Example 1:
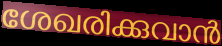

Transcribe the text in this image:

ശേഖരിക്കുവാൻ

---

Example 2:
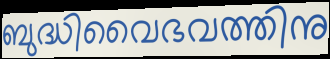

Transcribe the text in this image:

ബുദ്ധിവൈഭവത്തിനു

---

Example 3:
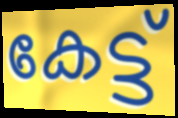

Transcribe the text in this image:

കേട്ട്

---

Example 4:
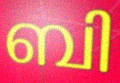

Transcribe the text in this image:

ബി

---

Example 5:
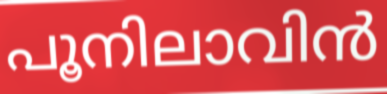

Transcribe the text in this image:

പൂനിലാവിൻ